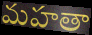
మహతా